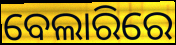
ବେଲାରିରେ